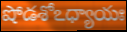
షోడశోఽధ్యాయః